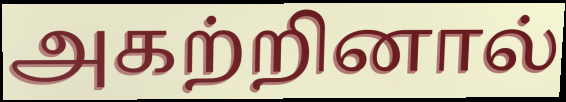
அகற்றினால்